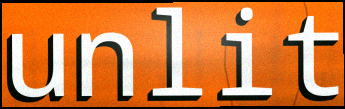
unlit